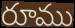
రూము